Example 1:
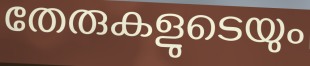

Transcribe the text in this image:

തേരുകളുടെയും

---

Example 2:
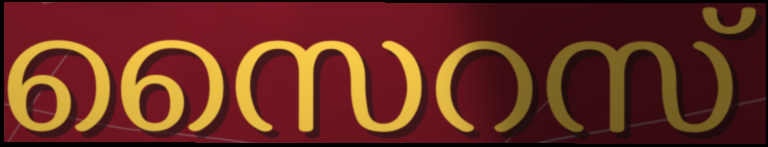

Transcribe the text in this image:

സൈറസ്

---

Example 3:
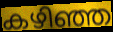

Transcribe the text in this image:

കഴിഞ്ഞ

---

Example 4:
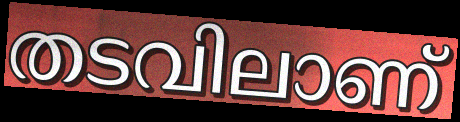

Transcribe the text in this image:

തടവിലാണ്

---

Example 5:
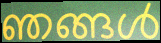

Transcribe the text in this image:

ഞങ്ങൾ